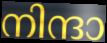
നിന്ദാ